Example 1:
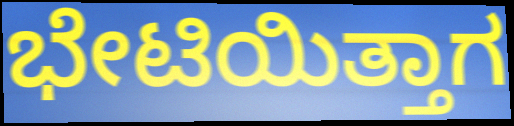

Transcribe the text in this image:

ಭೇಟಿಯಿತ್ತಾಗ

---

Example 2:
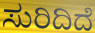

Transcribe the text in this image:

ಸುರಿದಿದೆ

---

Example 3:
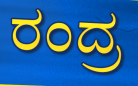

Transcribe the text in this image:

ರಂದ್ರ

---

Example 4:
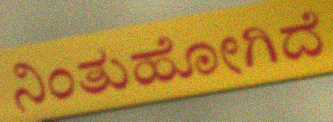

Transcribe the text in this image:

ನಿಂತುಹೋಗಿದೆ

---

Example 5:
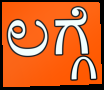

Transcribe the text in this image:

ಲಗ್ಗೆ